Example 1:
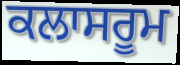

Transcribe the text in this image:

ਕਲਾਸਰੂਮ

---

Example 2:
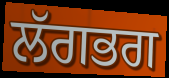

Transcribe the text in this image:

ਲੱਗਭਗ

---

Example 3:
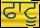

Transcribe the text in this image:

ਫਾਟੂ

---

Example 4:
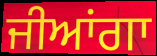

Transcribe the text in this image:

ਜੀਆਂਗਾ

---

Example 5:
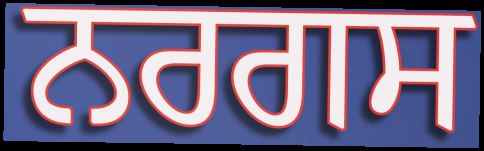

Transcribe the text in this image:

ਨਰਗਸ